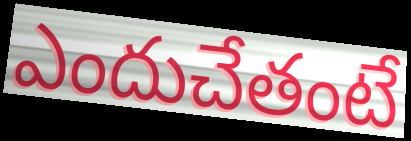
ఎందుచేతంటే